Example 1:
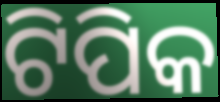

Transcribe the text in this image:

ଟିପିକ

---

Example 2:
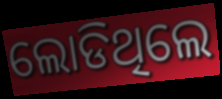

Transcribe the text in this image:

ଲୋଡିଥିଲେ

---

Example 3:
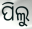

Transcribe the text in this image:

ପିଲୁ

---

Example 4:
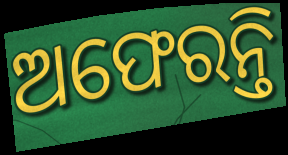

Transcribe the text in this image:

ଅଫେରନ୍ତି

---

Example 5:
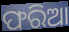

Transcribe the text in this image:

ଫରିଆ